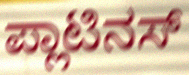
ಪ್ಲಾಟಿನಸ್